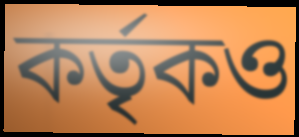
কর্তৃকও